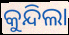
କୁନ୍ଦିଲା